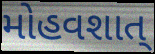
મોહવશાત્